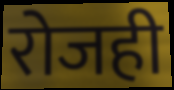
रोजही